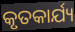
କୃତକାର୍ଯ୍ୟ